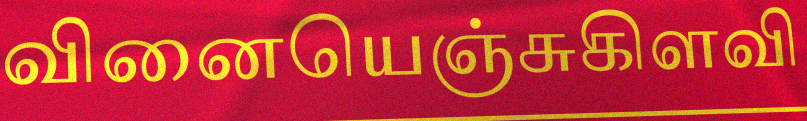
வினையெஞ்சுகிளவி